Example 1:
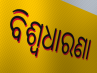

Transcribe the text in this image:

ବିଶ୍ୱଧାରଣା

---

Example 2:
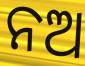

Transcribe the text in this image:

ନଅ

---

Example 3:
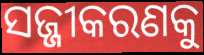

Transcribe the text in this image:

ସଜ୍ଜୀକରଣକୁ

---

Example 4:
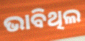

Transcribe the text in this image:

ଭାବିଥିଲ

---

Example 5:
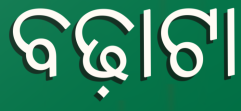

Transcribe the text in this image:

ବଢ଼ାଟା